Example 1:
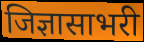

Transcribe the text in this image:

जिज्ञासाभरी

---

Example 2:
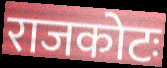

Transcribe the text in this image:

राजकोटः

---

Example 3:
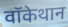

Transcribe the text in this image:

वॉकेथान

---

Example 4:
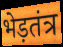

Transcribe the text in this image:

भेड़तंत्र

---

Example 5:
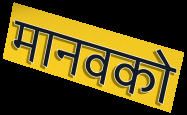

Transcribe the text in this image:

मानवको